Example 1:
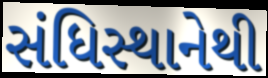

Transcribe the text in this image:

સંધિસ્થાનેથી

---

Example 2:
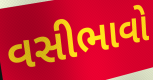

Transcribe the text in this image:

વસીભાવો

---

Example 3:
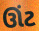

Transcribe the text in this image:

ઊંટ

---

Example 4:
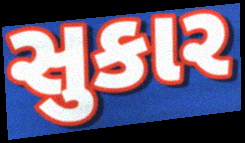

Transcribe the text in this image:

સુકાર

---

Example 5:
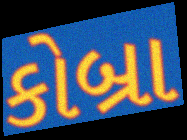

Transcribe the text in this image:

કોબ્રા